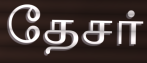
தேசர்